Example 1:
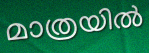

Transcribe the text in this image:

മാത്രയിൽ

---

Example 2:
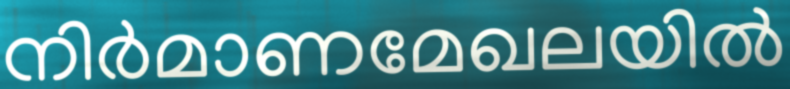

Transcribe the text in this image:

നിർമാണമേഖലയിൽ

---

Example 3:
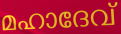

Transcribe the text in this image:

മഹാദേവ്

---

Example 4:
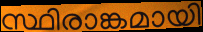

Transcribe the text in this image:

സ്ഥിരാങ്കമായി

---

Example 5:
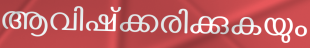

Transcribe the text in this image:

ആവിഷ്ക്കരിക്കുകയും